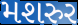
મશરુર